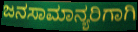
ಜನಸಾಮಾನ್ಯರಿಗಾಗಿ